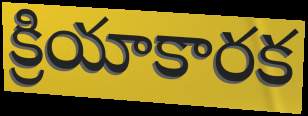
క్రియాకారక